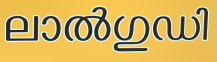
ലാൽഗുഡി